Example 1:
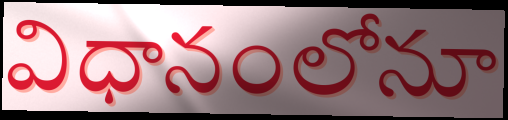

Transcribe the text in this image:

విధానంలోనూ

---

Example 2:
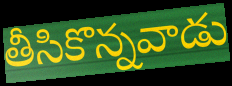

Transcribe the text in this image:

తీసికొన్నవాడు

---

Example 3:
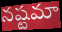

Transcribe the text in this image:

నష్టమా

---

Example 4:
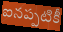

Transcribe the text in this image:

ఐనప్పటికీ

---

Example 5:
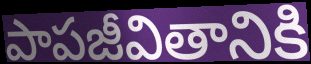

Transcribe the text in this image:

పాపజీవితానికి